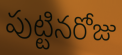
పుట్టినరోజు